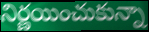
నిర్ణయించుకున్నా